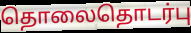
தொலைதொடர்பு